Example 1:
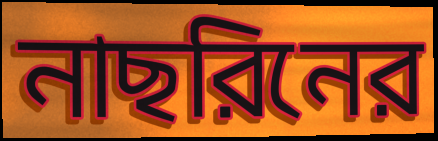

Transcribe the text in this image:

নাছরিনের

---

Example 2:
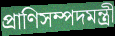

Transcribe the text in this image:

প্রাণিসম্পদমন্ত্রী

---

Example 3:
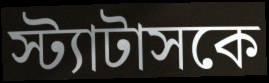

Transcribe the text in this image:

স্ট্যাটাসকে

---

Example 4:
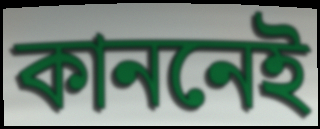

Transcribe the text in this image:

কাননেই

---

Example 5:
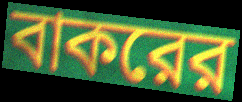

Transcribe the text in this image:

বাকরের